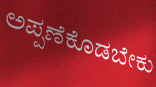
ಅಪ್ಪಣೆಕೊಡಬೇಕು